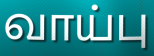
வாய்பு